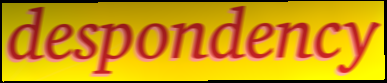
despondency